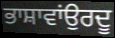
ਭਾਸ਼ਾਵਾਂਉਰਦੂ